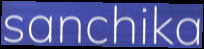
sanchika